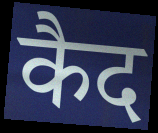
कैद